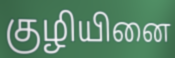
குழியினை